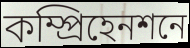
কম্প্রিহেনশনে